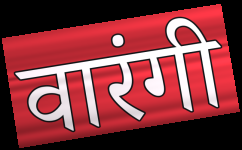
वारंगी